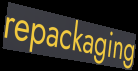
repackaging